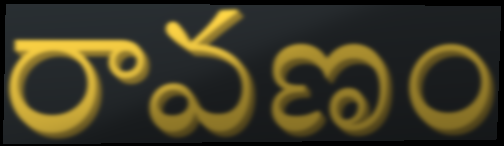
రావణం